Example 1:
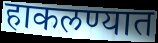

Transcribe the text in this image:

हाकलण्यात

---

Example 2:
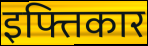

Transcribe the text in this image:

इफ्तिकार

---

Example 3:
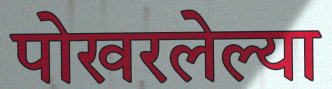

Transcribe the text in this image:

पोखरलेल्या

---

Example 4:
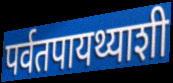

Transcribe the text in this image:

पर्वतपायथ्याशी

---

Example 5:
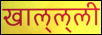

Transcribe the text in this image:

खाल्ल्ली